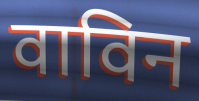
वाविन